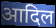
आदिल